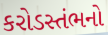
કરોડસ્તંભનો